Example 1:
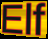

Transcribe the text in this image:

Elf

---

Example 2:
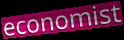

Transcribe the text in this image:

economist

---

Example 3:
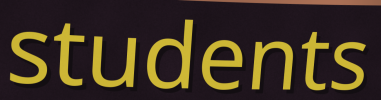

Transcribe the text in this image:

students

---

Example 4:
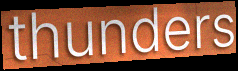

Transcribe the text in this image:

thunders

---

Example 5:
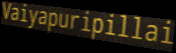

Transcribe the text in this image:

Vaiyapuripillai